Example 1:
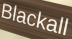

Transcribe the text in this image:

Blackall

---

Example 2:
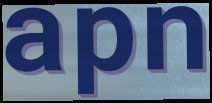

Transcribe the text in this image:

apn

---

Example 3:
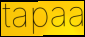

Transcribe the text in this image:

tapaa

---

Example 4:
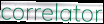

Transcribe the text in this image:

correlator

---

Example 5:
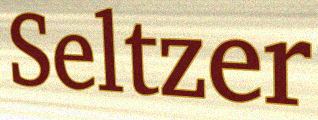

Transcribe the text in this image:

Seltzer